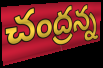
చంద్రన్న